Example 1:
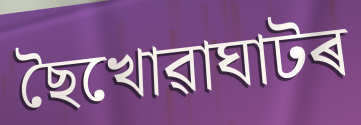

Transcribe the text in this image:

ছৈখোৱাঘাটৰ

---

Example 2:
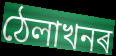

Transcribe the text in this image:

ঠেলাখনৰ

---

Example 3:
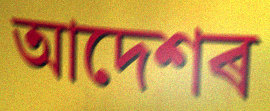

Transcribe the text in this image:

আদেশৰ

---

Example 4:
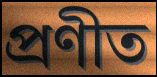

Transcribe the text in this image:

প্ৰণীত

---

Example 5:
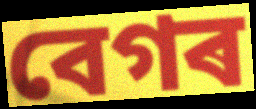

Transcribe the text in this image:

বেগৰ